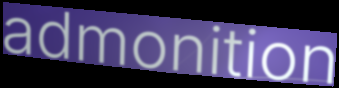
admonition